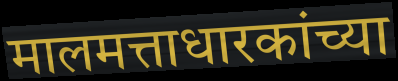
मालमत्ताधारकांच्या